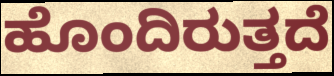
ಹೊಂದಿರುತ್ತದೆ